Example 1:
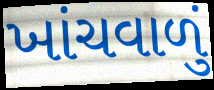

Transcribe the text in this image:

ખાંચવાળું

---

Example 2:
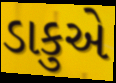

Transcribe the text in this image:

ડાકુએ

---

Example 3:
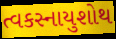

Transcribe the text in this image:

ત્વકસ્નાયુશોથ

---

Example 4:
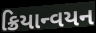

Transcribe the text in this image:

ક્રિયાન્વયન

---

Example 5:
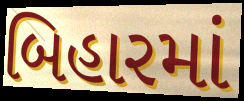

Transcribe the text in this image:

બિહારમાં